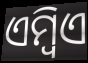
ଏମ୍ବିଏ